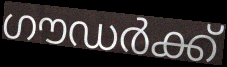
ഗൗഡർക്ക്